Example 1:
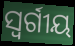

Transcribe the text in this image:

ସ୍ୱର୍ଗୀୟ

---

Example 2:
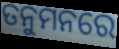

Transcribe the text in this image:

ତନୁମନରେ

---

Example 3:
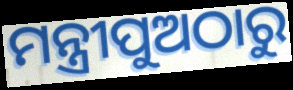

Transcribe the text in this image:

ମନ୍ତ୍ରୀପୁଅଠାରୁ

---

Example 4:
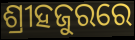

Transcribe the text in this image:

ଶ୍ରୀହଜୁରରେ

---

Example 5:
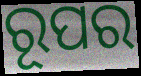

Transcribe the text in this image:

ରୂପର